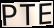
PTE